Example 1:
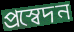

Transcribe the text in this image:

প্রস্বেদন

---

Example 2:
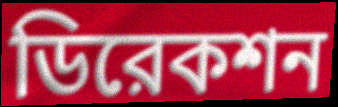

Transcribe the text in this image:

ডিরেকশন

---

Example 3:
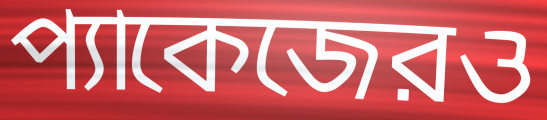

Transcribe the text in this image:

প্যাকেজেরও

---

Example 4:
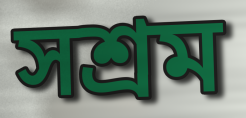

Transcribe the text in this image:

সশ্রম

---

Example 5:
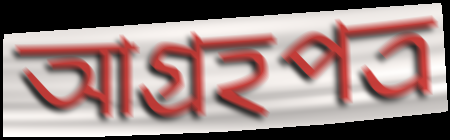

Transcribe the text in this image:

আগ্রহপত্র